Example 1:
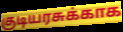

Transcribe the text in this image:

குடியரசுக்காக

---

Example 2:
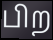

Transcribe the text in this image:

பிற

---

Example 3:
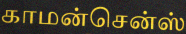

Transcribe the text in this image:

காமன்சென்ஸ்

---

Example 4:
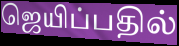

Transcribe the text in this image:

ஜெயிப்பதில்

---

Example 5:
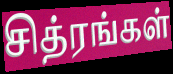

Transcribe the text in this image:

சித்ரங்கள்